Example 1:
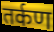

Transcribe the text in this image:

तर्कण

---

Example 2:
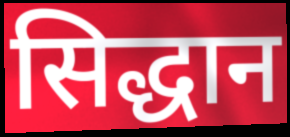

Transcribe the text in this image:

सिद्धान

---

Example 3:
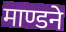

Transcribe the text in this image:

माण्डने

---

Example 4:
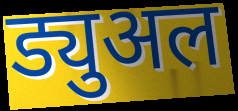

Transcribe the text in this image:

ड्युअल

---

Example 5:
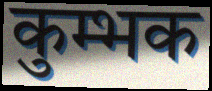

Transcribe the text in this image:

कुम्भक